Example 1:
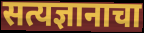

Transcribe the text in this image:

सत्यज्ञानाचा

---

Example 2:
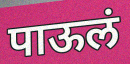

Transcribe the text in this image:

पाऊलं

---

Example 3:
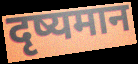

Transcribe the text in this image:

दृष्यमान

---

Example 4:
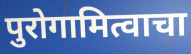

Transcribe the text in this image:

पुरोगामित्वाचा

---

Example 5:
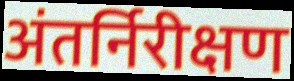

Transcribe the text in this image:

अंतर्निरीक्षण